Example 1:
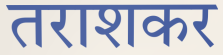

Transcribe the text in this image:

तराशकर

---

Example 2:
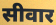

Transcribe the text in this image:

सीवार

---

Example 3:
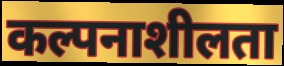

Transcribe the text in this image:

कल्पनाशीलता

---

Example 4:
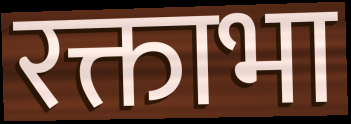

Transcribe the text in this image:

रक्ताभा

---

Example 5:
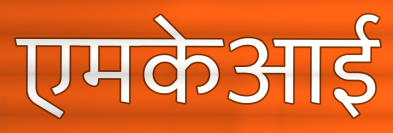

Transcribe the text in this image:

एमकेआई